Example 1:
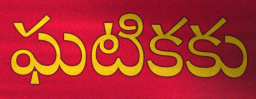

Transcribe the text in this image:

ఘటికకు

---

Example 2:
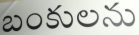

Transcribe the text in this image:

బంకులను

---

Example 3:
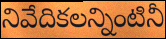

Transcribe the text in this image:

నివేదికలన్నింటినీ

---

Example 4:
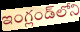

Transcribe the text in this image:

ఇంగ్లండ్‌లోని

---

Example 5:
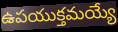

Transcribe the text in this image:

ఉపయుక్తమయ్యే